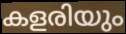
കളരിയും